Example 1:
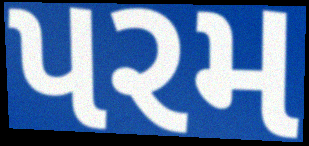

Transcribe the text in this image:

પરમ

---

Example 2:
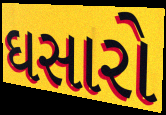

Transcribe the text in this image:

ઘસારો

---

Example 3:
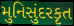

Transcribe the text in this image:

મુનિસુંદરકૃત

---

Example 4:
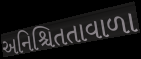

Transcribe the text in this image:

અનિશ્ચિતતાવાળા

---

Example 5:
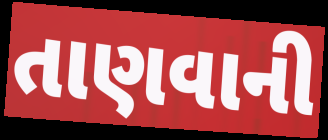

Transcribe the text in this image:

તાણવાની